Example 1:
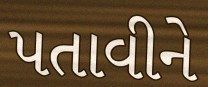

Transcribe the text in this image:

પતાવીને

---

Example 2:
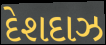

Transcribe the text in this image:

દેશદાઝ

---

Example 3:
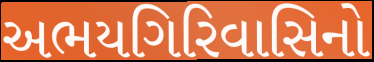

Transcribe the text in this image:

અભયગિરિવાસિનો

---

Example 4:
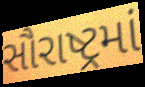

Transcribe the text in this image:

સૌરાષ્ટ્રમાં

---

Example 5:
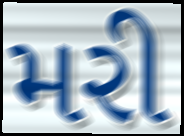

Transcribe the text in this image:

મરી